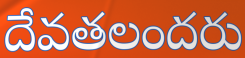
దేవతలందరు